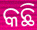
କଛି